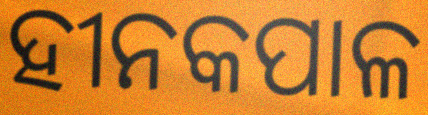
ହୀନକପାଳ